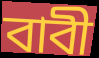
বাবী